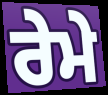
ਰੇਮੇ